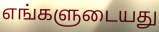
எங்களுடையது